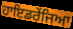
ਹਾਇਡਰੇਂਜਿਆ